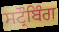
ਸਟ੍ਰੌਬਿੰਗ